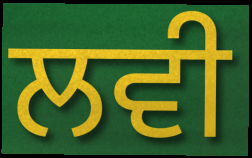
ਲਵੀ